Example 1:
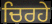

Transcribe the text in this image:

ਚਿਰਹੇ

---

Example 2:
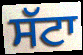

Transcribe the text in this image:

ਸੱਟਾ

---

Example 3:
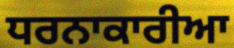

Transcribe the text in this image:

ਧਰਨਾਕਾਰੀਆ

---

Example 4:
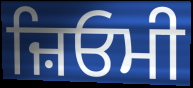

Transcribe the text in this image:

ਜ਼ਿਓਮੀ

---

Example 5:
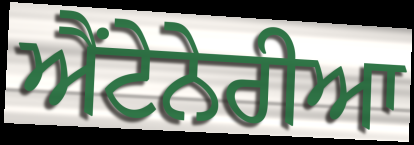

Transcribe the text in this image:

ਐਂਟੇਨੇਰੀਆ